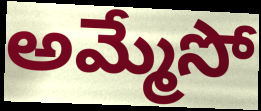
అమ్మేసో